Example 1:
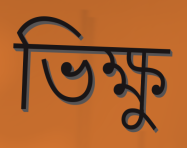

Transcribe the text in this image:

ভিক্ষু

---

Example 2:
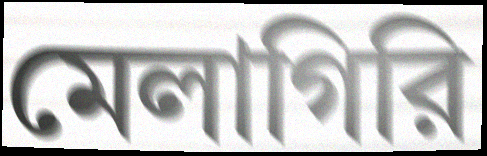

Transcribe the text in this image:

মেলাগিরি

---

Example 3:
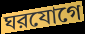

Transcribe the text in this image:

ঘরযোগে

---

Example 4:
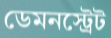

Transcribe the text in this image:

ডেমনস্ট্রেট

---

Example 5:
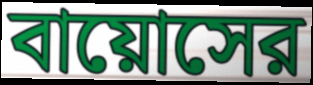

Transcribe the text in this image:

বায়োসের